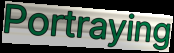
Portraying